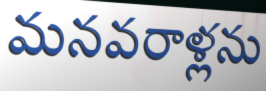
మనవరాళ్లను